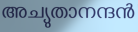
അച്യുതാനന്ദൻ